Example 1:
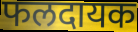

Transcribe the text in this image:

फलदायक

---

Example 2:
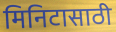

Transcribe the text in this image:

मिनिटासाठी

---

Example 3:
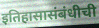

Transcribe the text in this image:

इतिहासासंबंधीची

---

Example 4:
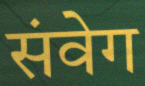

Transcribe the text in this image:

संवेग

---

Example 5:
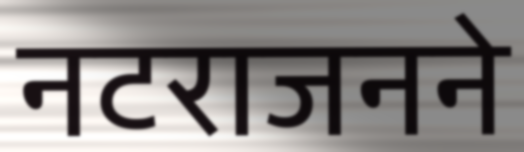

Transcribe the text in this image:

नटराजनने